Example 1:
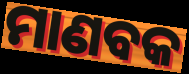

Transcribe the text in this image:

ମାଣବକ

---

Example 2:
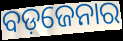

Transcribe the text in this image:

ବଡ଼ଜେନାର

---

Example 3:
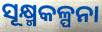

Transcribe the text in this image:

ସୂକ୍ଷ୍ମକଳ୍ପନା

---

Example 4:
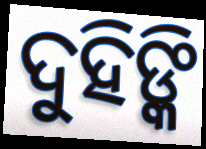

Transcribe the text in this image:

ଦୁହିଙ୍କି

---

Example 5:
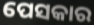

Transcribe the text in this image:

ପେସକାର